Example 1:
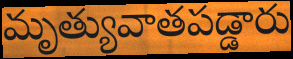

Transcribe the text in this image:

మృత్యువాతపడ్డారు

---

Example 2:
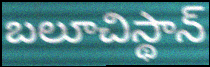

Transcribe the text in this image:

బలూచిస్థాన్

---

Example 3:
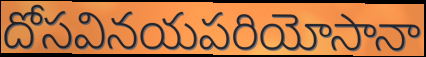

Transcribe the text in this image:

దోసవినయపరియోసానా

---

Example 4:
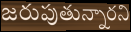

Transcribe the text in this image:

జరుపుతున్నారని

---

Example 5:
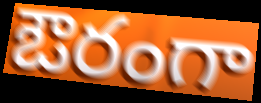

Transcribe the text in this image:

ఔరంగా